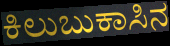
ಕಿಲುಬುಕಾಸಿನ